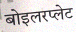
बोइलरप्लेट